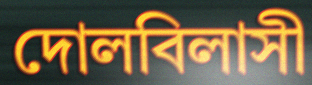
দোলবিলাসী